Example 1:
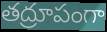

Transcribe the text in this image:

తద్రూపంగా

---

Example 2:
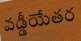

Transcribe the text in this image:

వడ్డీయేతర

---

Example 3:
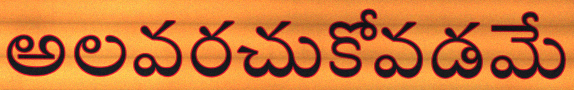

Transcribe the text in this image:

అలవరచుకోవడమే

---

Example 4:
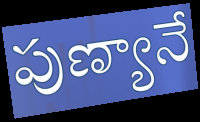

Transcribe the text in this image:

పుణ్యానే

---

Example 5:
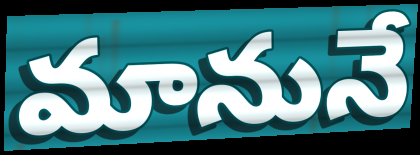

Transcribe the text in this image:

మానునే